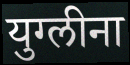
युग्लीना